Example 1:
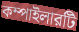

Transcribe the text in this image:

কম্পাইলারটি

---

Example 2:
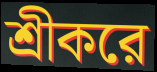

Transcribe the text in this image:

শ্রীকরে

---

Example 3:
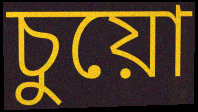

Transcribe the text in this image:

চুয়ো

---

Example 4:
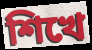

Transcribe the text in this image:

শিখে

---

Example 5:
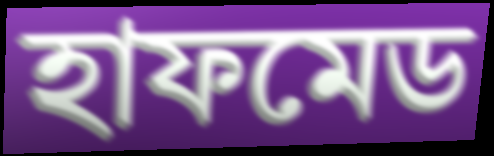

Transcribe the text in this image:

হাফমেড